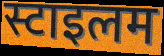
स्टाइलम